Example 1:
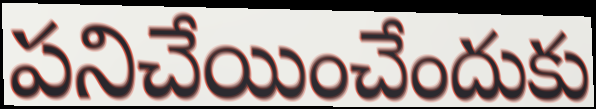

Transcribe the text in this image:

పనిచేయించేందుకు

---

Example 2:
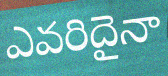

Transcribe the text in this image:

ఎవరిదైనా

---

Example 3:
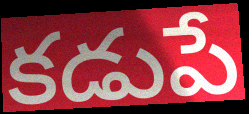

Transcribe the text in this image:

కడుపే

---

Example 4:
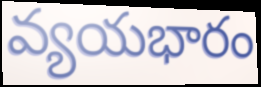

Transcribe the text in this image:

వ్యయభారం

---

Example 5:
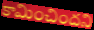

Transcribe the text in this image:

కామించిందని